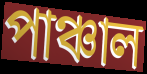
পাঞ্চাল